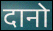
दानो